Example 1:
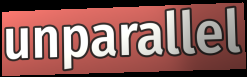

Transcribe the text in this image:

unparallel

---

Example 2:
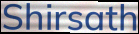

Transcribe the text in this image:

Shirsath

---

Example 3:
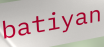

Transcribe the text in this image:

batiyan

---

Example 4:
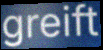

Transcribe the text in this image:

greift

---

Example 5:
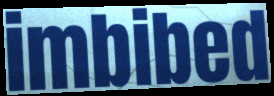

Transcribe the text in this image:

imbibed